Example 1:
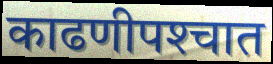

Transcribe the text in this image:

काढणीपश्‍चात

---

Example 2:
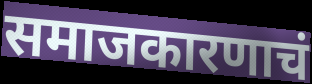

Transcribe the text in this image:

समाजकारणाचं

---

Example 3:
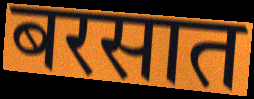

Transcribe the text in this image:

बरसात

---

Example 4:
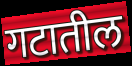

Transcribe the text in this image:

गटातील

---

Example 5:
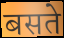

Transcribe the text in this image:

बसते